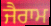
ਜੈਰਾਮ